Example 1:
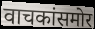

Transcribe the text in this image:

वाचकांसमोर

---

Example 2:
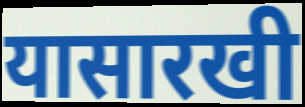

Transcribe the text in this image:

यासारखी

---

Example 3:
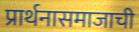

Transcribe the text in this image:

प्रार्थनासमाजाची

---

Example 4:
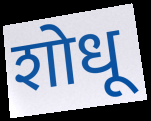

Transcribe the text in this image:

शोधू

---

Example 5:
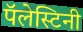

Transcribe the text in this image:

पॅलेस्टिनी